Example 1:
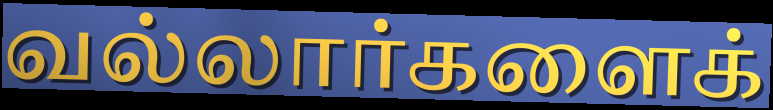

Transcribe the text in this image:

வல்லார்களைக்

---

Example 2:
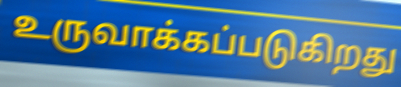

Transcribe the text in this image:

உருவாக்கப்படுகிறது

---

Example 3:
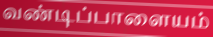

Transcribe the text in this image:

வண்டிப்பாளையம்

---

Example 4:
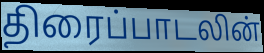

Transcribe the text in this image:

திரைப்பாடலின்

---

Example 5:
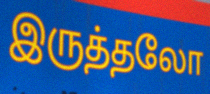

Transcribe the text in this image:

இருத்தலோ